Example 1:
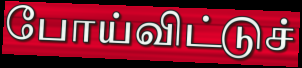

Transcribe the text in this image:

போய்விட்டுச்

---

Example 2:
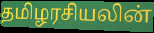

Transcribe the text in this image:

தமிழரசியலின்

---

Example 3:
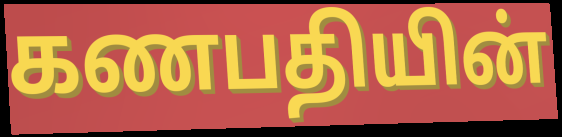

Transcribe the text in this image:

கணபதியின்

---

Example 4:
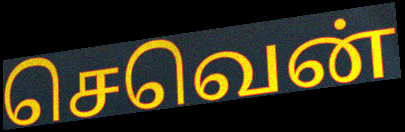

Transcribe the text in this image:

செவென்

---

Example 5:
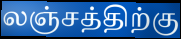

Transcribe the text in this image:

லஞ்சத்திற்கு